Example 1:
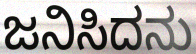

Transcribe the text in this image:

ಜನಿಸಿದನು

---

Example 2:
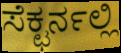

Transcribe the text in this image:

ಸೆಕ್ಟರ್ನಲ್ಲಿ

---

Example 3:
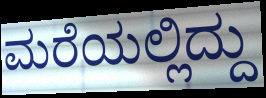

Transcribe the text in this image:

ಮರೆಯಲ್ಲಿದ್ದು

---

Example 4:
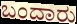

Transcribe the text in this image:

ಬಂದಾರು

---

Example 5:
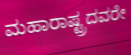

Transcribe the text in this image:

ಮಹಾರಾಷ್ಟ್ರದವರೇ